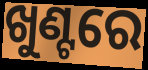
ଖୁଣ୍ଟରେ